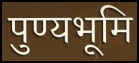
पुण्यभूमि